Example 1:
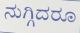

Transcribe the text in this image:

ನುಗ್ಗಿದರೂ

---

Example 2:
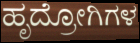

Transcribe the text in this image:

ಹೃದ್ರೋಗಿಗಳ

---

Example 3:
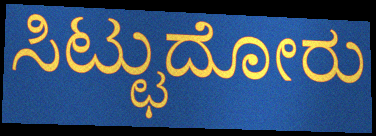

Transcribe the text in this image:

ಸಿಟ್ಟುದೋರು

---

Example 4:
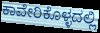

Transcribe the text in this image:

ಕಾವೇರಿಕೊಳ್ಳದಲ್ಲಿ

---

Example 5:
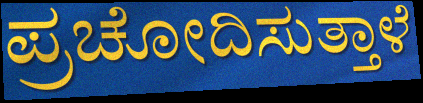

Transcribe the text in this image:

ಪ್ರಚೋದಿಸುತ್ತಾಳೆ